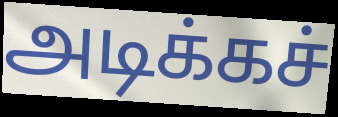
அடிக்கச்